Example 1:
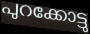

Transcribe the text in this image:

പുറക്കോട്ടു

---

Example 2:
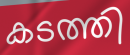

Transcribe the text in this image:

കടത്തി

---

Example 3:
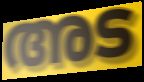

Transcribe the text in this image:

അട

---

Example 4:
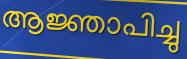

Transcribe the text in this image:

ആജ്ഞാപിച്ചു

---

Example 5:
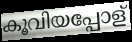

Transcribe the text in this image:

കൂവിയപ്പോള്